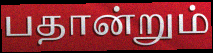
பதான்றும்